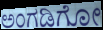
ಅಂಗಡಿಗೋ